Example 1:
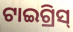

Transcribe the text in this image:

ଟାଇଗ୍ରିସ୍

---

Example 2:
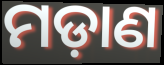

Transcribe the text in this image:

ମଡ଼ାଣ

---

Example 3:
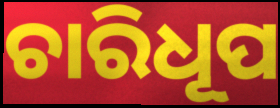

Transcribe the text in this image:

ଚାରିଧୂପ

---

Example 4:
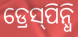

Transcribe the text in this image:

ଡ୍ରେସ୍‌ପିନ୍ଧି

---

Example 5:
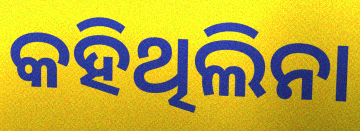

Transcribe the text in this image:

କହିଥିଲିନା